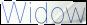
Widow